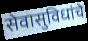
सेवासुविधांचे